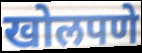
खोलपणे